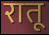
रातू